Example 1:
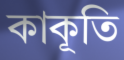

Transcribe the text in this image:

কাকূতি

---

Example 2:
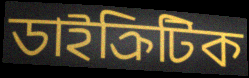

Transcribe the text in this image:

ডাইক্ৰিটিক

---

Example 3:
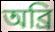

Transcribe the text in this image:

অব্ৰি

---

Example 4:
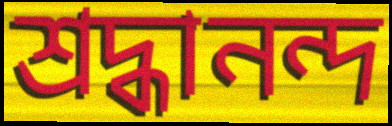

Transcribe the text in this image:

শ্ৰদ্ধানন্দ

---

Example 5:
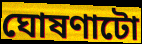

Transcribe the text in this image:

ঘোষণাটো